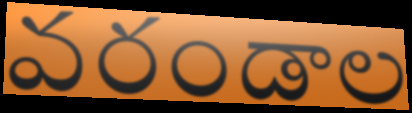
వరండాల